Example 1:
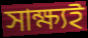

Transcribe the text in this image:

সাক্ষ্যই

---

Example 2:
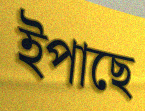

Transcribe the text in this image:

ইপাছে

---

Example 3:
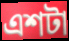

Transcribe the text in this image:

এশটা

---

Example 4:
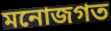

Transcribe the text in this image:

মনোজগত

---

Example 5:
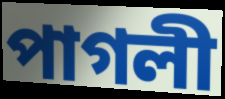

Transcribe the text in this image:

পাগলী